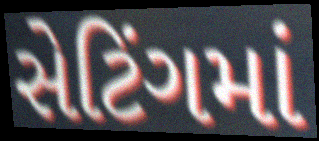
સેટિંગમાં